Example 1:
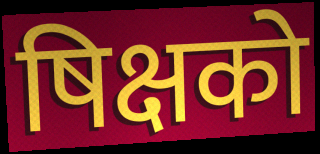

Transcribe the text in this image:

षिक्षको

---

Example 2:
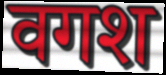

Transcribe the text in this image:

वगश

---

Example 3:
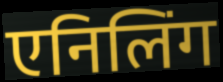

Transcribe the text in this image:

एनिलिंग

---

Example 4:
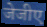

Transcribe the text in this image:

जेजीए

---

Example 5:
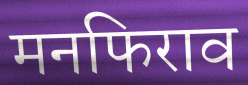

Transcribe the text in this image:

मनफिराव